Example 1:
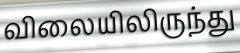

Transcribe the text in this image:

விலையிலிருந்து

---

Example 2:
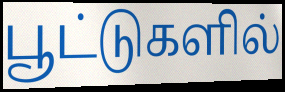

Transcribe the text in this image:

பூட்டுகளில்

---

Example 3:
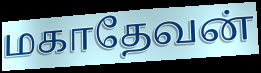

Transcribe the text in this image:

மகாதேவன்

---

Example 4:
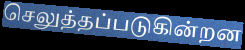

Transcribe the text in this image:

செலுத்தப்படுகின்றன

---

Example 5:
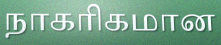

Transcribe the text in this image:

நாகரிகமான